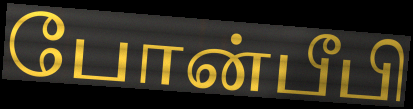
போன்பீபி